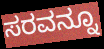
ಸರವನ್ನೂ